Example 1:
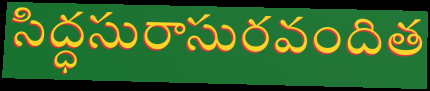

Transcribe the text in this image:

సిద్ధసురాసురవందిత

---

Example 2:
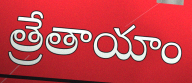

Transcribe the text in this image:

త్రేతాయాం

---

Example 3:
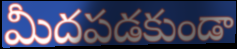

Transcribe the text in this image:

మీదపడకుండా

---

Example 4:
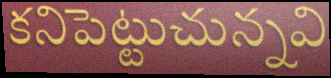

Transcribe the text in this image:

కనిపెట్టుచున్నవి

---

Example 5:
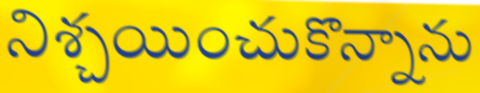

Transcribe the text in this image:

నిశ్చయించుకొన్నాను